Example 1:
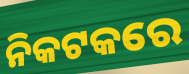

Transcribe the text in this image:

ନିକଟକରେ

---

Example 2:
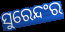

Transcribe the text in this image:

ସୁରେନ୍ଦଂର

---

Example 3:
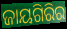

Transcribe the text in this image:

ଜାୟଗିରିର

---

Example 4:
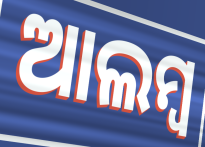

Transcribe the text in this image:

ଆଲମ୍ବ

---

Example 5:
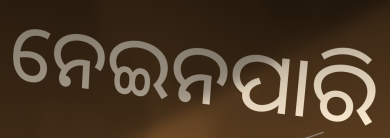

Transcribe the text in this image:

ନେଇନପାରି